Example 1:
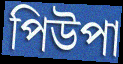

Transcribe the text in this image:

পিউপা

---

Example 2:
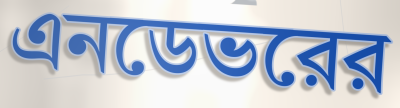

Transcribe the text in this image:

এনডেভরের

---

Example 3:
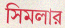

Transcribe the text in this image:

সিমলার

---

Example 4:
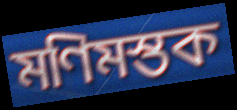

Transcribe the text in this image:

মণিমস্তক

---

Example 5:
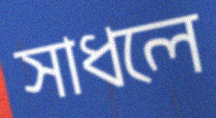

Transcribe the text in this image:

সাধলে